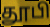
தூபி